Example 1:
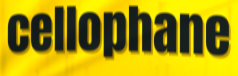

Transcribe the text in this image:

cellophane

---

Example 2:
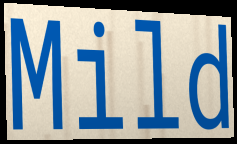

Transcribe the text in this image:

Mild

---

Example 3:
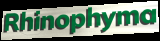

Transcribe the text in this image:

Rhinophyma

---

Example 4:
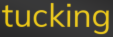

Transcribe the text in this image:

tucking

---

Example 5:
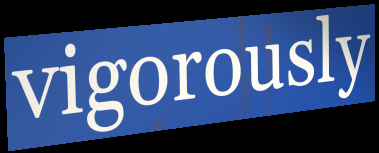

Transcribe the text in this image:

vigorously